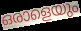
ഒരാളെയും